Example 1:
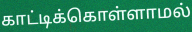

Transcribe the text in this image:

காட்டிக்கொள்ளாமல்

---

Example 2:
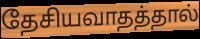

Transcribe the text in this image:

தேசியவாதத்தால்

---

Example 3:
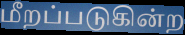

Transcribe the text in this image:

மீறப்படுகின்ற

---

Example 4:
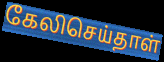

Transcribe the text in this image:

கேலிசெய்தாள்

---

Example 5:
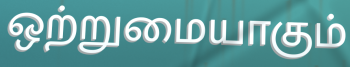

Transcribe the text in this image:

ஒற்றுமையாகும்